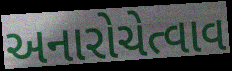
અનારોચેત્વાવ